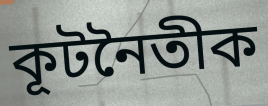
কূটনৈতীক